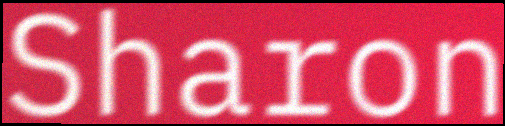
Sharon